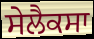
ਸੇਲੈਕਸਾ